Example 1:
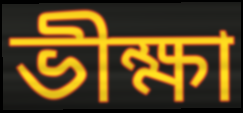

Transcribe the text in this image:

ভীক্ষা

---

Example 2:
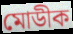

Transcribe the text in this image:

মোডীক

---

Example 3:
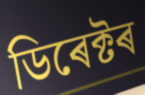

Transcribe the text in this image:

ডিৰেক্টৰ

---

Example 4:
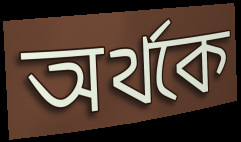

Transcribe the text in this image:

অৰ্থকে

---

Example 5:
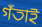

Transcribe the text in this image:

গঁতাই